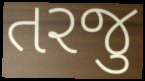
તરજુ